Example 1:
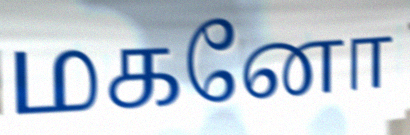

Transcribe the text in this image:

மகனோ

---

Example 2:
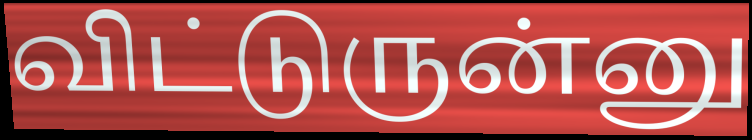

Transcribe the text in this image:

விட்டுருன்னு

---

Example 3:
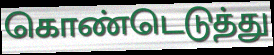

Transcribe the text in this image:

கொண்டெடுத்து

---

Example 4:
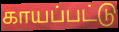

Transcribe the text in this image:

காயப்பட்டு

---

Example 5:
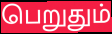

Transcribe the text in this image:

பெறுதும்